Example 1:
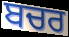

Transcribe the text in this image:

ਬਚਰ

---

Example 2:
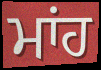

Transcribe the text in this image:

ਮਾਂਹ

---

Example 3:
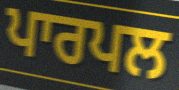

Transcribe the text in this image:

ਪਾਰਪਲ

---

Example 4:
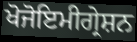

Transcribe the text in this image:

ਖੋਜੋਇਮੀਗ੍ਰੇਸ਼ਨ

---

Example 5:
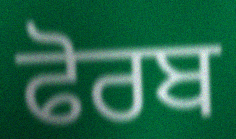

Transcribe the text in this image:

ਫੋਰਬ